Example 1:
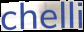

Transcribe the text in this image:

chelli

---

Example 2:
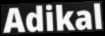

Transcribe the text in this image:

Adikal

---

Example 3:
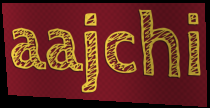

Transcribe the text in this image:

aajchi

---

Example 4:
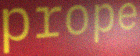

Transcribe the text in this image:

prope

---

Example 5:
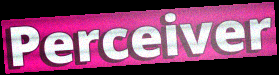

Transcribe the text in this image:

Perceiver